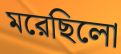
মরেছিলো